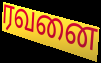
ரவனை